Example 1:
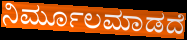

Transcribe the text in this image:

ನಿರ್ಮೂಲಮಾಡದೆ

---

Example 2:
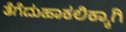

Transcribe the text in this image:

ತೆಗೆದುಹಾಕಲಿಕ್ಕಾಗಿ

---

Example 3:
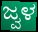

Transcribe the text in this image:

ಜ್ವಳ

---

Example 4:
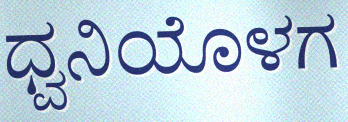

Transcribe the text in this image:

ಧ್ವನಿಯೊಳಗ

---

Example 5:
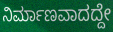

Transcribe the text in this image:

ನಿರ್ಮಾಣವಾದದ್ದೇ